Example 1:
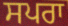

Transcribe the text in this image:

ਸਪਰਾ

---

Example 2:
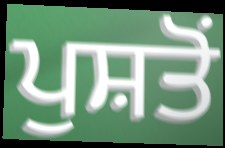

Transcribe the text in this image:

ਪੁਸ਼ਤੋਂ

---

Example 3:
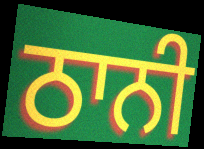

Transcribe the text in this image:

ਠਾਨੀ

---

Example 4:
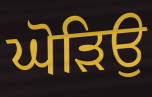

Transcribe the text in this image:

ਘੋੜਿਉ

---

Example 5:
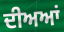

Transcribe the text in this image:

ਦੀਅਆਂ